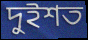
দুইশত